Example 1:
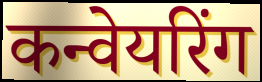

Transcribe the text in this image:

कन्वेयरिंग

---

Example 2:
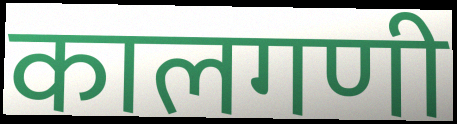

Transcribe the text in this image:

कालगणी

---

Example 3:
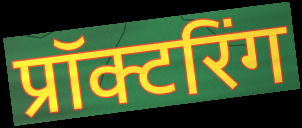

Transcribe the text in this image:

प्रॉक्टरिंग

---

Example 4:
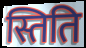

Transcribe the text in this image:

स्तिति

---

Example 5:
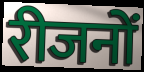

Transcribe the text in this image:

रीजनों